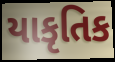
યાકૃતિક